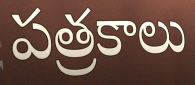
పత్రకాలు